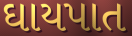
ઘાયપાત